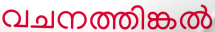
വചനത്തിങ്കൽ